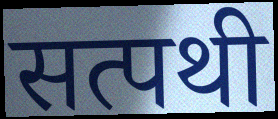
सत्पथी